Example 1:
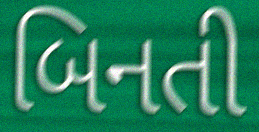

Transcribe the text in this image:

બિનતી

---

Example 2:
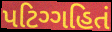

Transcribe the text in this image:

પટિગ્ગહિતં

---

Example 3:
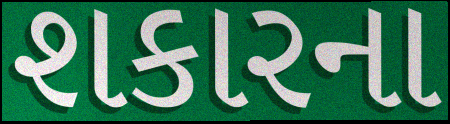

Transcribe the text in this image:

શકારના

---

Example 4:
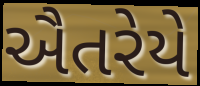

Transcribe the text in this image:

ઐતરેયે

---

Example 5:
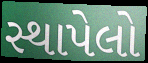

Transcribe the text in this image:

સ્થાપેલો